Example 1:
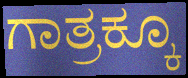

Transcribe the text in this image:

ಗಾತ್ರಕ್ಕೂ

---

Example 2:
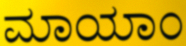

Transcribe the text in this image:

ಮಾಯಾಂ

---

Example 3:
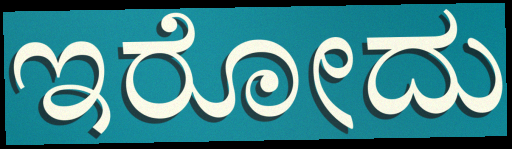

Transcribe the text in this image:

ಇರೋದು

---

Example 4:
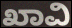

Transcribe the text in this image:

ಖಾವಿ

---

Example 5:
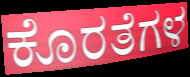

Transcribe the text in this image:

ಕೊರತೆಗಳ